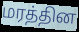
மரத்தின